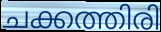
ചക്കത്തിരി